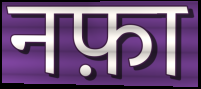
नफ़ा